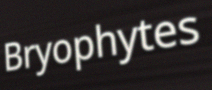
Bryophytes